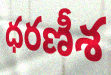
ధరణీశ